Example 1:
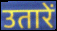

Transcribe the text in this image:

उतारें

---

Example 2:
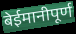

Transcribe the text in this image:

बेईमानीपूर्ण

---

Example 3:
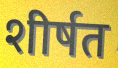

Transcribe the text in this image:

शीर्षत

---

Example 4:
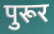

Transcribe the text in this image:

पुरूर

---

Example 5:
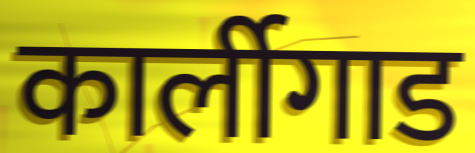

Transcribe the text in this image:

कार्लीगाड